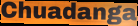
Chuadanga